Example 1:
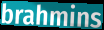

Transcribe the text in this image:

brahmins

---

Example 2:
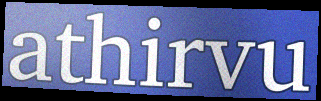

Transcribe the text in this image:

athirvu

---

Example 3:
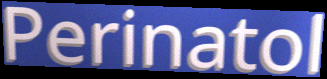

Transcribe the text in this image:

Perinatol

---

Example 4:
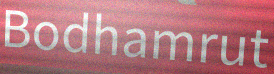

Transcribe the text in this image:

Bodhamrut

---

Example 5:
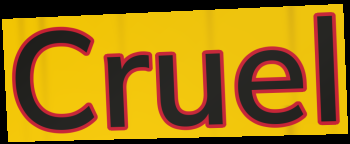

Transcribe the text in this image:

Cruel